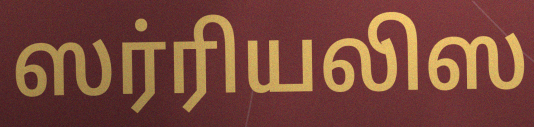
ஸர்ரியலிஸ